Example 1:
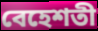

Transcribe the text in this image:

বেহেশতী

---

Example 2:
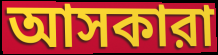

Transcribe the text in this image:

আসকারা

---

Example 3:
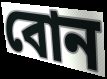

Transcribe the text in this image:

বোন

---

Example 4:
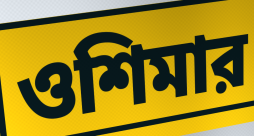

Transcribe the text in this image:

ওশিমার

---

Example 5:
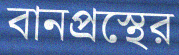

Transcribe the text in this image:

বানপ্রস্থের